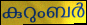
കുറുംബർ